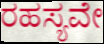
ರಹಸ್ಯವೇ